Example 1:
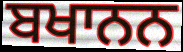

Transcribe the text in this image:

ਬਖਾਨਨ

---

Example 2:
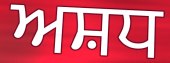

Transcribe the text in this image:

ਅਸ਼ਧ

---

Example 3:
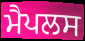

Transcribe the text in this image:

ਮੈਪਲਸ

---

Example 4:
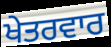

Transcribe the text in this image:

ਖੇਤਰਵਾਰ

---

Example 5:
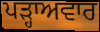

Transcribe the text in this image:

ਪੜ੍ਹਾਅਵਾਰ